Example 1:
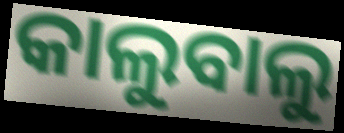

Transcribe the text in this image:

କାଲୁବାଲୁ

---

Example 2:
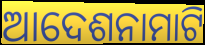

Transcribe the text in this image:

ଆଦେଶନାମାଟି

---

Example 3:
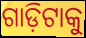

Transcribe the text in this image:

ଗାଡ଼ିଟାକୁ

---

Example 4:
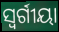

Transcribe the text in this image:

ସ୍ବର୍ଗୀୟା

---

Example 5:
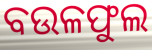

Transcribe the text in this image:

ବଉଳଫୁଲ